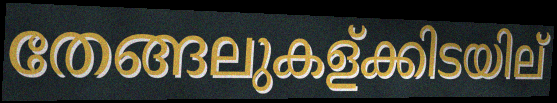
തേങ്ങലുകള്ക്കിടയില്